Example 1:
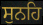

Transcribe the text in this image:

ਸੁਨਹਿ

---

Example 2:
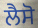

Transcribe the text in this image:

ਲੈਸੋ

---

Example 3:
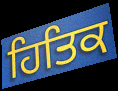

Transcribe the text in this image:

ਹਿਤਿਕ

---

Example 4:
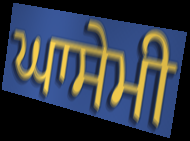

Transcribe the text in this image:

ਘਾਸੇਮੀ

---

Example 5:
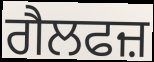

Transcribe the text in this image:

ਗੈਲਫਜ਼